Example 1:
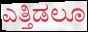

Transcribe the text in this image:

ಎತ್ತಿಡಲೂ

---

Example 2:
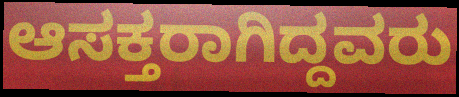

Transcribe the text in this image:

ಆಸಕ್ತರಾಗಿದ್ದವರು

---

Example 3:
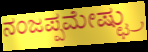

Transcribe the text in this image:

ನಂಜಪ್ಪಮೇಷ್ಟ್ರು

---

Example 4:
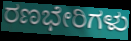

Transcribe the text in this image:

ರಣಭೇರಿಗಳು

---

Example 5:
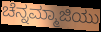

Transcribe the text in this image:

ಚೆನ್ನಮ್ಮಾಜಿಯು